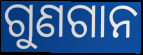
ଗୁଣଗାନ